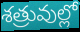
శత్రువుల్లో